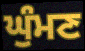
ਘੁੰਮਣ